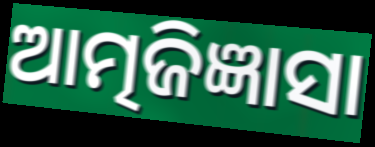
ଆତ୍ମଜିଜ୍ଞାସା